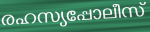
രഹസ്യപ്പോലീസ്